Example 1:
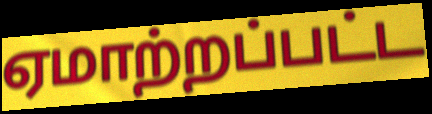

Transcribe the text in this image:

ஏமாற்றப்பட்ட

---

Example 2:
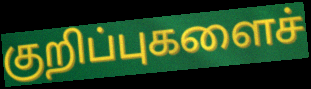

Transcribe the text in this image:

குறிப்புகளைச்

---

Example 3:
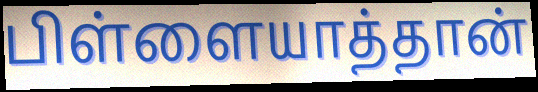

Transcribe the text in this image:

பிள்ளையாத்தான்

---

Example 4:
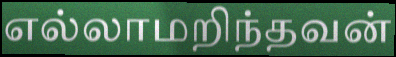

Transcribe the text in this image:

எல்லாமறிந்தவன்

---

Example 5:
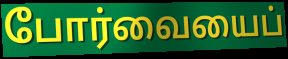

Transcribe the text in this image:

போர்வையைப்